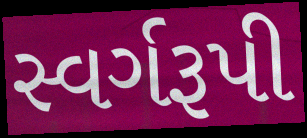
સ્વર્ગરૂપી